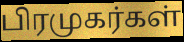
பிரமுகர்கள்